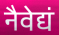
नैवेद्यं